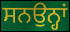
ਸਨਉਨ੍ਹਾਂ